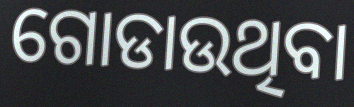
ଗୋଡାଉଥିବା